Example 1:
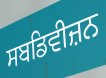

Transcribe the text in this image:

ਸਬਡਿਵੀਜ਼ਨ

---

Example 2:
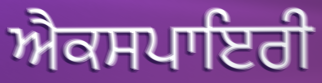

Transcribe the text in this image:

ਐਕਸਪਾਇਰੀ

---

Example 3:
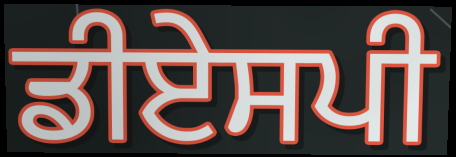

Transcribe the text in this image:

ਡੀਏਸਪੀ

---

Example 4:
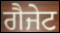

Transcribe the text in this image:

ਗੈਜੇਟ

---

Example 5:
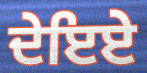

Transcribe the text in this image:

ਦੇਇਏ